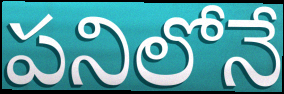
పనిలోనే